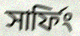
সার্ফিং